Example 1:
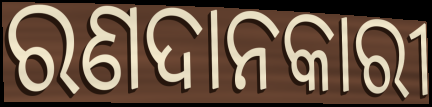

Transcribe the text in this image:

ରଣଦାନକାରୀ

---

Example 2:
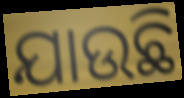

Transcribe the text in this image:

ଯାଉଛି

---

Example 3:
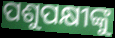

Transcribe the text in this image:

ପଶୁପକ୍ଷୀଙ୍କୁ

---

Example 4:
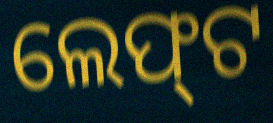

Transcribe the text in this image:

ଲେଫ୍‌ଟ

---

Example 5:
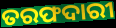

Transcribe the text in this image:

ତରଫଦାରୀ